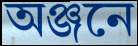
অঞ্জনে